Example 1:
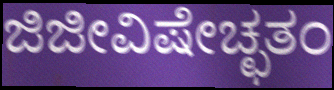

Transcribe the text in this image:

ಜಿಜೀವಿಷೇಚ್ಛತಂ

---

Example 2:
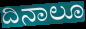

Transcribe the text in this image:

ದಿನಾಲೂ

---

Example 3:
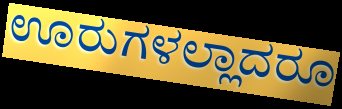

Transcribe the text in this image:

ಊರುಗಳಲ್ಲಾದರೂ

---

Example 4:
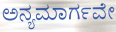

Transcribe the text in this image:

ಅನ್ಯಮಾರ್ಗವೇ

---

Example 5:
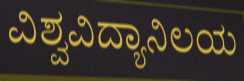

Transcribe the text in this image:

ವಿಶ್ವವಿದ್ಯಾನಿಲಯ